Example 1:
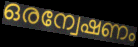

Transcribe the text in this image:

ഒരന്വേഷണം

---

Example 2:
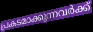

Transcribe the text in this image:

പ്രകടമാക്കുന്നവർക്ക്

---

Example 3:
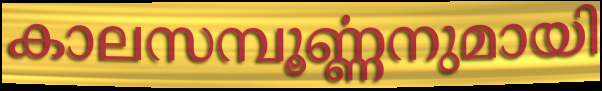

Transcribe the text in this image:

കാലസമ്പൂൎണ്ണനുമായി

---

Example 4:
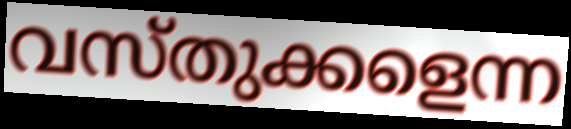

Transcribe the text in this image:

വസ്തുക്കളെന്ന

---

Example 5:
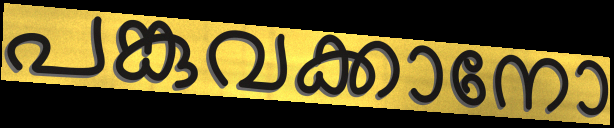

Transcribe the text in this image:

പങ്കുവക്കാനോ